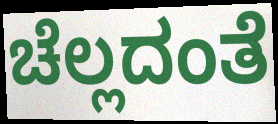
ಚೆಲ್ಲದಂತೆ